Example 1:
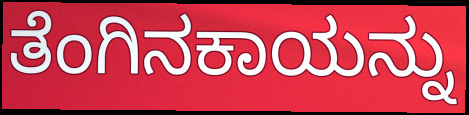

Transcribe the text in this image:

ತೆಂಗಿನಕಾಯನ್ನು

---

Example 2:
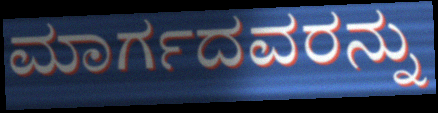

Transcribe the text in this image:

ಮಾರ್ಗದವರನ್ನು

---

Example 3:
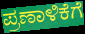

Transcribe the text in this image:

ಪ್ರಣಾಳಿಕೆಗೆ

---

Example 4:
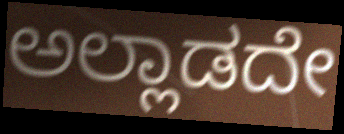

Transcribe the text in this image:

ಅಲ್ಲಾಡದೇ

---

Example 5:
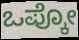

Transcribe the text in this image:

ಒಪ್ಕೋ